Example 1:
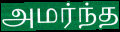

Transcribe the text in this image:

அமர்ந்த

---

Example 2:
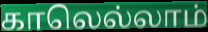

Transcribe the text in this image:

காலெல்லாம்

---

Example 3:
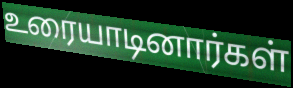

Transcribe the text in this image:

உரையாடினார்கள்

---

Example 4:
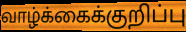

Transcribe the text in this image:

வாழ்க்கைக்குறிப்பு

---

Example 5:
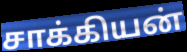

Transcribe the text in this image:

சாக்கியன்